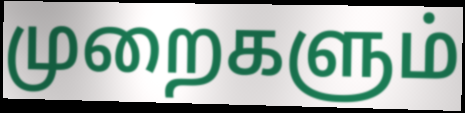
முறைகளும்